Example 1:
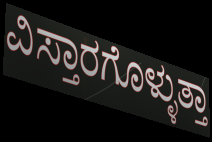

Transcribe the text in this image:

ವಿಸ್ತಾರಗೊಳ್ಳುತ್ತಾ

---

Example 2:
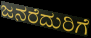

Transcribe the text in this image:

ಜನರೆದುರಿಗೆ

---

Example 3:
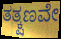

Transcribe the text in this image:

ತತ್ಕ್ಷಣವೇ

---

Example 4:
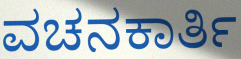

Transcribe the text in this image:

ವಚನಕಾರ್ತಿ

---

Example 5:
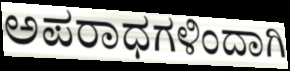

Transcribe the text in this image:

ಅಪರಾಧಗಳಿಂದಾಗಿ